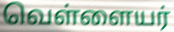
வெள்ளையர்